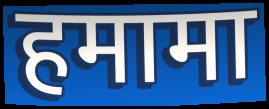
हमामा